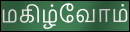
மகிழ்வோம்